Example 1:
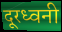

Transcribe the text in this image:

दूरध्वनी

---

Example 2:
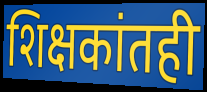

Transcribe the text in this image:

शिक्षकांतही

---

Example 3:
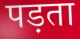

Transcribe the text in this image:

पड़ता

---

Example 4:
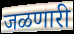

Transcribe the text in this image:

जळणारी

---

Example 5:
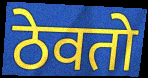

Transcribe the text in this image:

ठेवतो